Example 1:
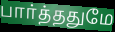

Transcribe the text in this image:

பார்த்ததுமே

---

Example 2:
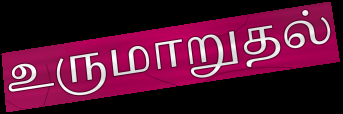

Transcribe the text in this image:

உருமாறுதல்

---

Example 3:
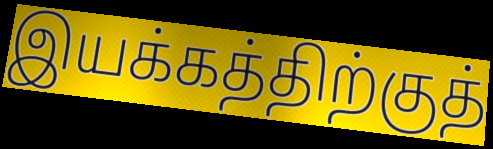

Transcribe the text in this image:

இயக்கத்திற்குத்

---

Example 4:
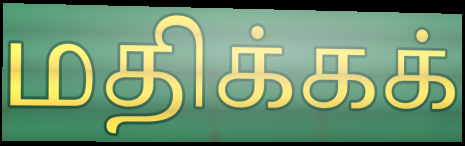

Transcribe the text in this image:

மதிக்கக்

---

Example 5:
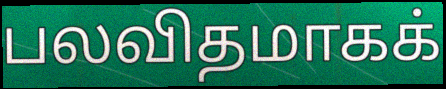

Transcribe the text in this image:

பலவிதமாகக்